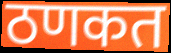
ठणकत